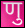
णु